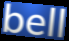
bell